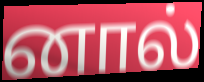
னால்